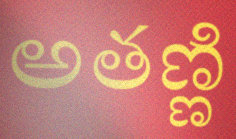
అతణ్ణి